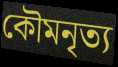
কৌমনৃত্য